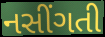
નસીંગતી